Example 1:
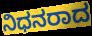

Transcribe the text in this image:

ನಿಧನರಾದ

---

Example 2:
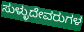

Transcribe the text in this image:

ಸುಳ್ಳುದೇವರುಗಳ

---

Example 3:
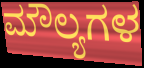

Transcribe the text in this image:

ಮೌಲ್ಯಗಳ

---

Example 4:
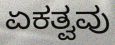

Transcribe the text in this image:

ಏಕತ್ವವು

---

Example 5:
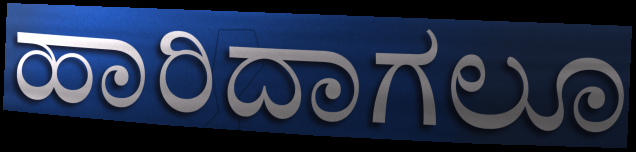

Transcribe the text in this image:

ಹಾರಿದಾಗಲೂ